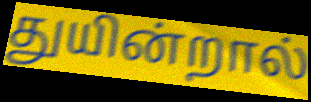
துயின்றால்